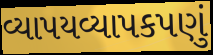
વ્યાપયવ્યાપકપણું